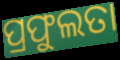
ପ୍ରଫୁଲତା